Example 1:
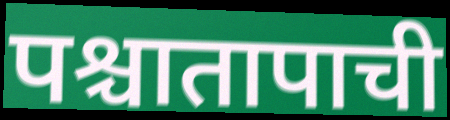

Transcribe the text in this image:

पश्चातापाची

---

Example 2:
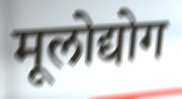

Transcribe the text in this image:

मूलोद्योग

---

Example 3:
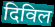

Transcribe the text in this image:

दिविल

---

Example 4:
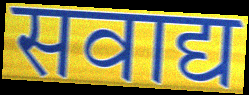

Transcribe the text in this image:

सवाद्य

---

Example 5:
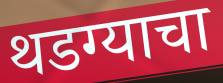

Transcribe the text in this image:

थडग्याचा